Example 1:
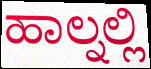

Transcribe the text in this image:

ಹಾಲ್ನಲ್ಲಿ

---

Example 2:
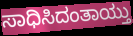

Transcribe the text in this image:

ಸಾಧಿಸಿದಂತಾಯ್ತು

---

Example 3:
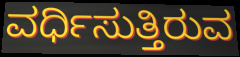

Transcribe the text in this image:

ವರ್ಧಿಸುತ್ತಿರುವ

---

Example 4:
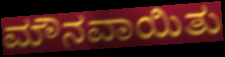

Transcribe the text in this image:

ಮೌನವಾಯಿತು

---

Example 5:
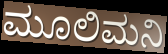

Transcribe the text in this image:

ಮೂಲಿಮನಿ